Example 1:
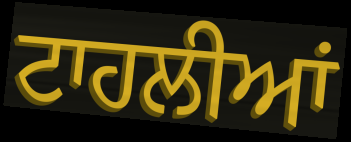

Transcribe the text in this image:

ਟਾਹਲੀਆਂ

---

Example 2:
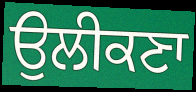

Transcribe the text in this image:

ਉਲੀਕਣਾ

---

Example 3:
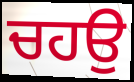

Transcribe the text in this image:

ਚਹਉ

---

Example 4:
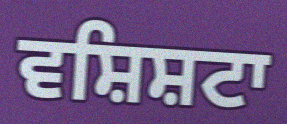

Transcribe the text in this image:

ਵਸ਼ਿਸ਼ਟਾ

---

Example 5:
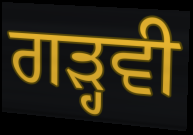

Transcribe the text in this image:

ਗੜ੍ਹਵੀ